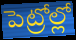
పెట్రోల్లో